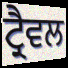
ਟ੍ਰੈਵਲ